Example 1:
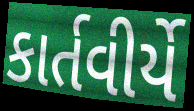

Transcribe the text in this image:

કાર્તવીર્યે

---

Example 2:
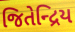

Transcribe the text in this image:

જિતેન્દ્રિય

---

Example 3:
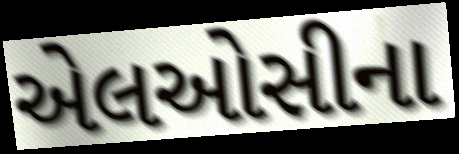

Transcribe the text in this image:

એલઓસીના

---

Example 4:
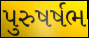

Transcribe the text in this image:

પુરુષર્ષભ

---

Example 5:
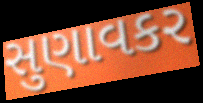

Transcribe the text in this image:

સુણાવકર